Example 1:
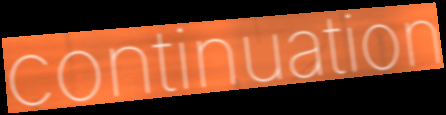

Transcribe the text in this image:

continuation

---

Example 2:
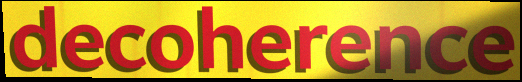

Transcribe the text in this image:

decoherence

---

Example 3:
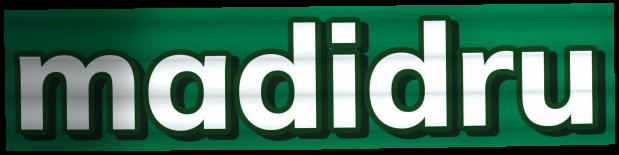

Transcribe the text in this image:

madidru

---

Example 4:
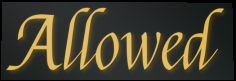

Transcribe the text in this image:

Allowed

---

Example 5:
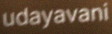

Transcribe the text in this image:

udayavani